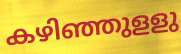
കഴിഞ്ഞുളളു